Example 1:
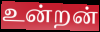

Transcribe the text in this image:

உன்றன்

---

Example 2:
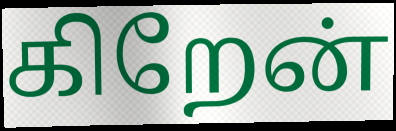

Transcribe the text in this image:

கிறேன்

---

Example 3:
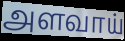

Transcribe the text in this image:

அளவாய்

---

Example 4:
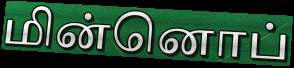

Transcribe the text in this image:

மின்னொப்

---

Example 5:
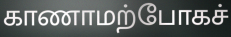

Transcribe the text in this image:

காணாமற்போகச்